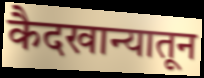
कैदखान्यातून